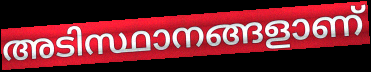
അടിസ്ഥാനങ്ങളാണ്